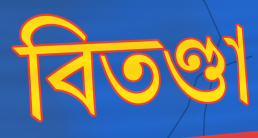
বিতণ্ডা